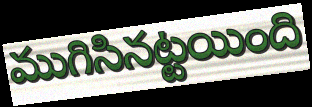
ముగిసినట్టయింది